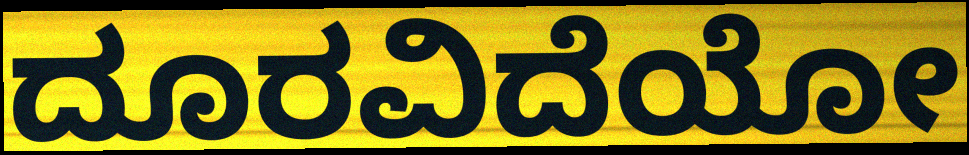
ದೂರವಿದೆಯೋ